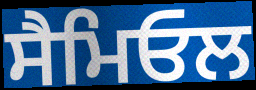
ਸੈਮਿਓਲ